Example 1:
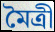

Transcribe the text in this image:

মৈত্ৰী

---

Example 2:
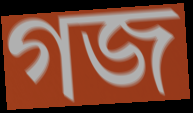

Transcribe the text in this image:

গজ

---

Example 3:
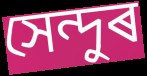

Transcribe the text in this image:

সেন্দুৰ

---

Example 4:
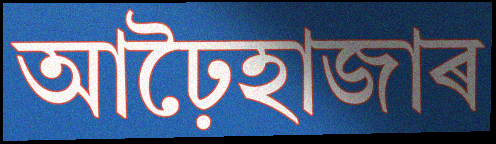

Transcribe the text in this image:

আঢ়ৈহাজাৰ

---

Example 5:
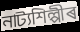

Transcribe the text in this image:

নাট্যশিল্পীৰ